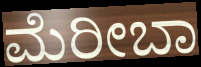
ಮೆರೀಬಾ